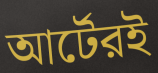
আর্টেরই